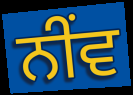
ਨੀਂਵ